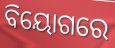
ବିୟୋଗରେ